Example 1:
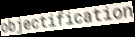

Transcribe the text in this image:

objectification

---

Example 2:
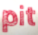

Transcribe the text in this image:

pit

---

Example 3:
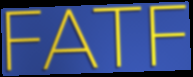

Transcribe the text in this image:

FATF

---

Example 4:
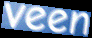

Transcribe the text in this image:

veen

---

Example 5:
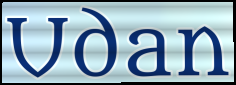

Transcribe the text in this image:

Udan